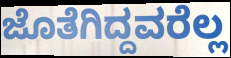
ಜೊತೆಗಿದ್ದವರೆಲ್ಲ